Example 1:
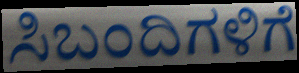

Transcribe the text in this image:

ಸಿಬಂದಿಗಳಿಗೆ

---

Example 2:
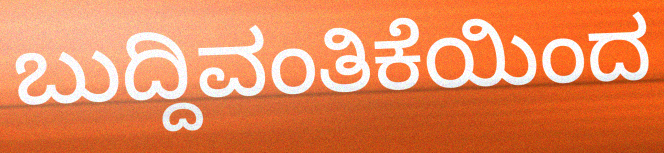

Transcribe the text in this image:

ಬುದ್ದಿವಂತಿಕೆಯಿಂದ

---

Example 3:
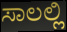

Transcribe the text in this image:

ಸಾಲಲ್ಲಿ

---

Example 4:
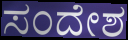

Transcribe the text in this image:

ಸಂದೇಶ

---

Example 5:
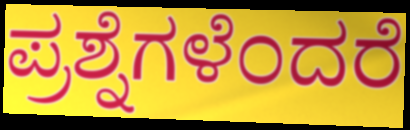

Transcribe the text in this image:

ಪ್ರಶ್ನೆಗಳೆಂದರೆ